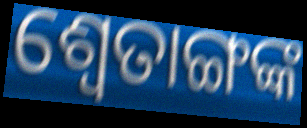
ଶ୍ବେତାଙ୍ଗଙ୍କ